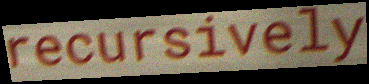
recursively